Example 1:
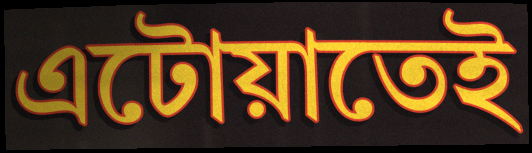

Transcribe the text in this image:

এটোয়াতেই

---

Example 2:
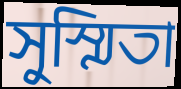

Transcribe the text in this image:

সুস্মিতা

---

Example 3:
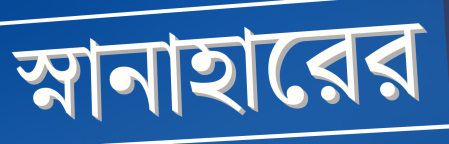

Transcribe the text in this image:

স্নানাহারের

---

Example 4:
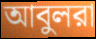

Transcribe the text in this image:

আবুলরা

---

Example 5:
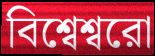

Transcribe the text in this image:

বিশ্বেশ্বরো